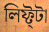
লিফ্ট্টা